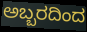
ಅಬ್ಬರದಿಂದ